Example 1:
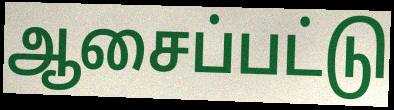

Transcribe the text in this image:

ஆசைப்பட்டு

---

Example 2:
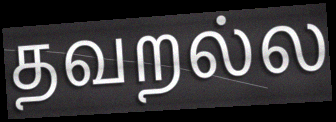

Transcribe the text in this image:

தவறல்ல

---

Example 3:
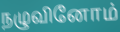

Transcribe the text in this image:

நழுவினோம்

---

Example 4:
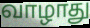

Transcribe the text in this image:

வாழாது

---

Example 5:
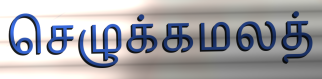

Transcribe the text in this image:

செழுக்கமலத்